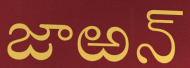
జాఱన్